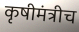
कृषीमंत्रीच